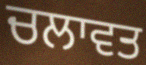
ਚਲਾਵਤ